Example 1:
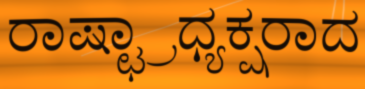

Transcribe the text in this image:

ರಾಷ್ಟ್ರಾಧ್ಯಕ್ಷರಾದ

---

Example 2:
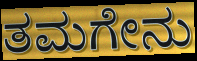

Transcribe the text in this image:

ತಮಗೇನು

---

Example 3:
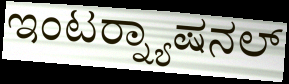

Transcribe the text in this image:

ಇಂಟರ್‍ನ್ಯಾಷನಲ್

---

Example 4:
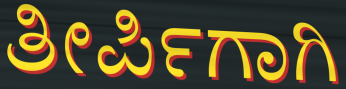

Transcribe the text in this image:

ತೀರ್ಪಿಗಾಗಿ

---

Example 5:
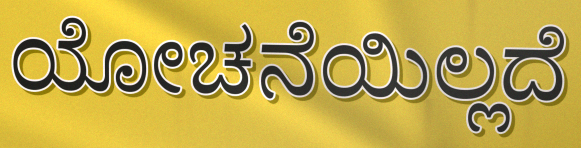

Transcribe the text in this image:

ಯೋಚನೆಯಿಲ್ಲದೆ